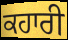
ਕਹਾਰੀ